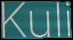
Kuli